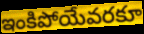
ఇంకిపోయేవరకూ